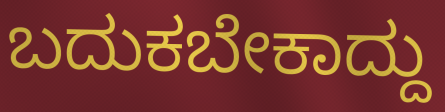
ಬದುಕಬೇಕಾದ್ದು